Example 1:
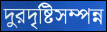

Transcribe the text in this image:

দুরদৃষ্টিসম্পন্ন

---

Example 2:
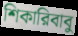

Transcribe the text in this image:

শিকারিবাবু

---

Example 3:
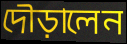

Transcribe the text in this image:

দৌড়ালেন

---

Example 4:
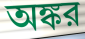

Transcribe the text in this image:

অঙ্কর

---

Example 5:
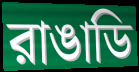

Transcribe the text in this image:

রাঙাডি